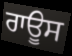
ਰਾਊਸ